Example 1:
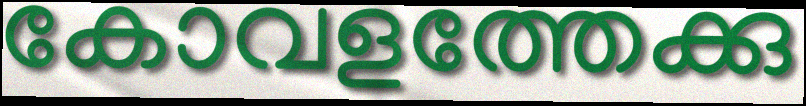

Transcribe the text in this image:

കോവളത്തേക്കു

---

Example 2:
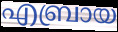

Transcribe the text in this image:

എബ്രായ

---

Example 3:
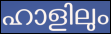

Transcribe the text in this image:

ഹാളിലും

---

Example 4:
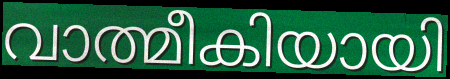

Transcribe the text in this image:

വാത്മീകിയായി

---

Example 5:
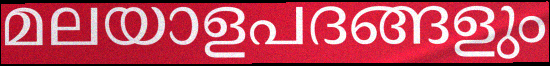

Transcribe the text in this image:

മലയാളപദങ്ങളും